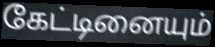
கேட்டினையும்